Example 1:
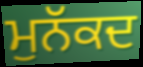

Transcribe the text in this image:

ਮੁਨੱਕਦ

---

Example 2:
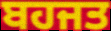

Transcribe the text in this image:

ਬਹਜਤ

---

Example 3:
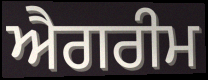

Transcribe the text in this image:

ਐਗਰੀਮ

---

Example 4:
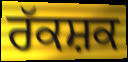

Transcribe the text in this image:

ਰੱਕਸ਼ਕ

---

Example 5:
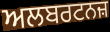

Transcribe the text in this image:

ਅਲਬਰਟਨਜ਼